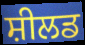
ਸ਼ੀਲਡ